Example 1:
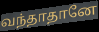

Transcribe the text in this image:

வந்தாதானே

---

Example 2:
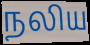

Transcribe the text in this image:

நலிய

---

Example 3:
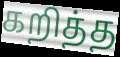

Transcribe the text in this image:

கறித்த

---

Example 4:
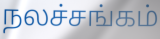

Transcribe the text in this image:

நலச்சங்கம்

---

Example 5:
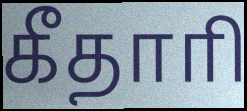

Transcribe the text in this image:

கீதாரி